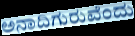
ಅನಾದಿಗುರುವೆಂದು